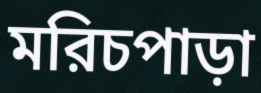
মরিচপাড়া